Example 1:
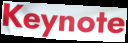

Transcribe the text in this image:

Keynote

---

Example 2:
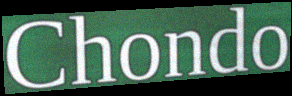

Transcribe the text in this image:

Chondo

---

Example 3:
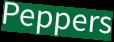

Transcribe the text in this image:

Peppers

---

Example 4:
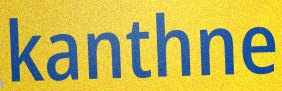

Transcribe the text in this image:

kanthne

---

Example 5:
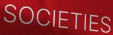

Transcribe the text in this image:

SOCIETIES